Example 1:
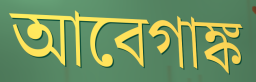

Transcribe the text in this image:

আবেগাঙ্ক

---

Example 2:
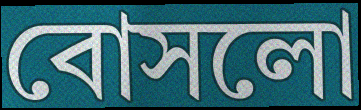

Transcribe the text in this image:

বোসলো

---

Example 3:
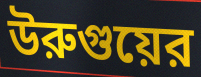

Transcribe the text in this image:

উরুগুয়ের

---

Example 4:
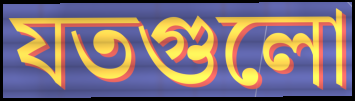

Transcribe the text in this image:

যতগুলো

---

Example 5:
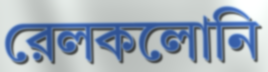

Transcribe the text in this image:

রেলকলোনি